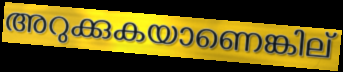
അറുക്കുകയാണെങ്കില്